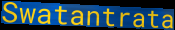
Swatantrata